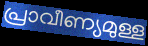
പ്രാവീണ്യമുള്ള